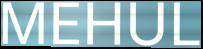
MEHUL